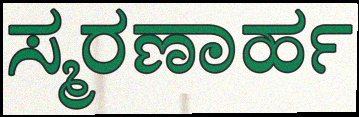
ಸ್ಮರಣಾರ್ಹ